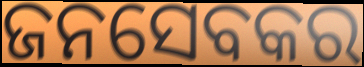
ଜନସେବକର